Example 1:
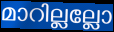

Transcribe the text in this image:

മാറില്ലല്ലോ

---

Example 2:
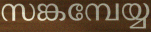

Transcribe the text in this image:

സങ്കമ്പേയ്യ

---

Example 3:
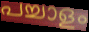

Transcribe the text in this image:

പച്ചാളം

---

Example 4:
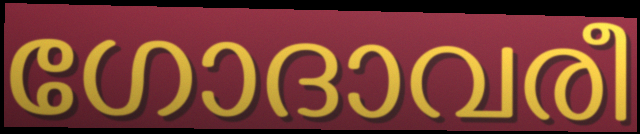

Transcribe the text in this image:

ഗോദാവരീ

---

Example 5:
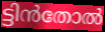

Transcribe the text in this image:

ട്ടിൻതോൽ